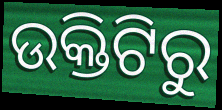
ଉକ୍ତିଟିରୁ